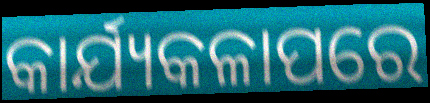
କାର୍ଯ୍ୟକଳାପରେ